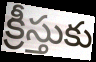
క్రీస్తుకు